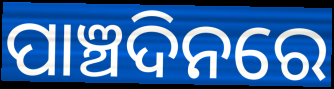
ପାଞ୍ଚଦିନରେ